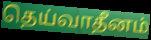
தெய்வாதீனம்